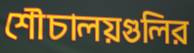
শৌচালয়গুলির